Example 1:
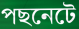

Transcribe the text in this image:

পছনেটে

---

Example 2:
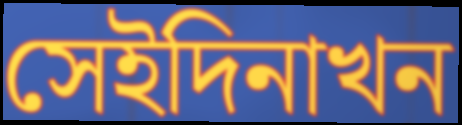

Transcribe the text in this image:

সেইদিনাখন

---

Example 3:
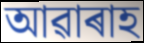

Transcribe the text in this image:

আৱাৰাহ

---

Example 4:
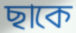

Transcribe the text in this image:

ছাকে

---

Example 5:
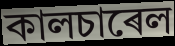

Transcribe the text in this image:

কালচাৰেল